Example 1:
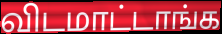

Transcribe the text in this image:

விடமாட்டாங்க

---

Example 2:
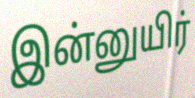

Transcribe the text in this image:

இன்னுயிர்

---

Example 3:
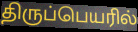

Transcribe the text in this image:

திருப்பெயரில்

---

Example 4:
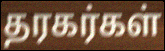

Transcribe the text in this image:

தரகர்கள்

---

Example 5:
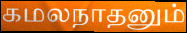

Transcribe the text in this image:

கமலநாதனும்